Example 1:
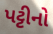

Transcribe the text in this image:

પટ્ટીનો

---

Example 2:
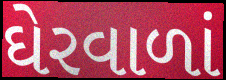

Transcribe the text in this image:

ઘેરવાળાં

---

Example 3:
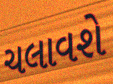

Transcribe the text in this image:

ચલાવશે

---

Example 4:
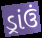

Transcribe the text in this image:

ડ્રાંઉં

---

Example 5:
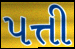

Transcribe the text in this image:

પત્તી